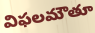
విఫలమౌతూ